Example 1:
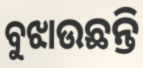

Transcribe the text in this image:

ବୁଝାଉଛନ୍ତି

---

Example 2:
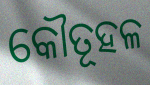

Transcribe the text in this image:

କୌତୂହଳ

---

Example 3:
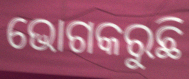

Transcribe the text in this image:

ଭୋଗକରୁଛି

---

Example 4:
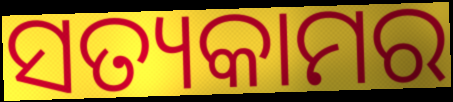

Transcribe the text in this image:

ସତ୍ୟକାମର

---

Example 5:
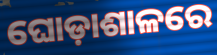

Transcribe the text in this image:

ଘୋଡ଼ାଶାଳରେ